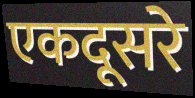
एकदूसरे